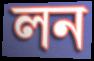
লন